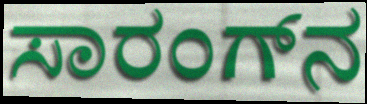
ಸಾರಂಗ್‌ನ